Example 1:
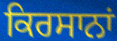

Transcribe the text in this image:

ਕਿਰਸਾਨਾਂ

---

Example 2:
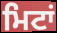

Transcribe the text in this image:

ਮਿਟਾਂ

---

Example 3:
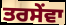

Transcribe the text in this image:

ਤਰਸੇਂਵਾ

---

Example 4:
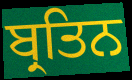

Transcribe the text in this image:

ਬ੍ਰਤਿਨ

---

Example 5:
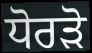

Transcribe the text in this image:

ਧੋਰੜੋ